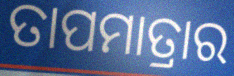
ତାପମାତ୍ରାର